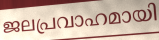
ജലപ്രവാഹമായി